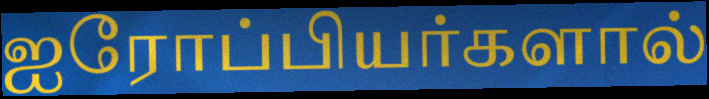
ஐரோப்பியர்களால்